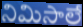
నిమిసాలే